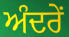
ਅੰਦਰੇਂ